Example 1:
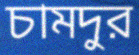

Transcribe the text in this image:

চামদুর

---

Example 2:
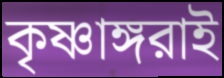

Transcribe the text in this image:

কৃষ্ণাঙ্গরাই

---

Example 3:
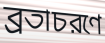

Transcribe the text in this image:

ব্রতাচরণে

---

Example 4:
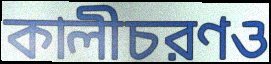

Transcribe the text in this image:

কালীচরণও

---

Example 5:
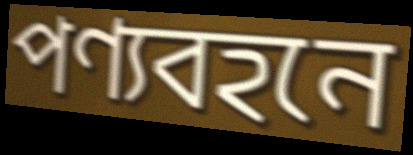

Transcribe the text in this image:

পণ্যবহনে